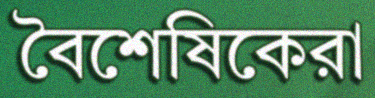
বৈশেষিকেরা